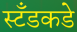
स्टॅंडकडे